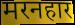
मरनहार